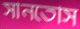
সানতোস